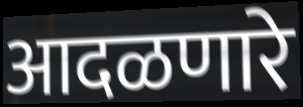
आदळणारे